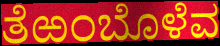
ತೆಱಂಬೊಳೆವ